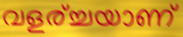
വളര്ച്ചയാണ്